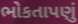
ભોકતાપણું